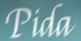
Pida